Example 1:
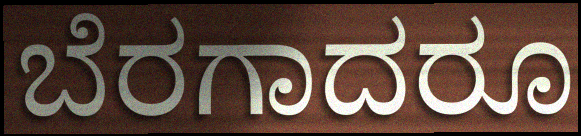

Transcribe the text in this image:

ಬೆರಗಾದರೂ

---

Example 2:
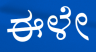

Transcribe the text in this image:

ಈಳೇ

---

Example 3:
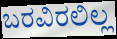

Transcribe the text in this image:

ಬರವಿರಲಿಲ್ಲ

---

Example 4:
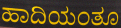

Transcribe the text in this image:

ಹಾದಿಯಂತೂ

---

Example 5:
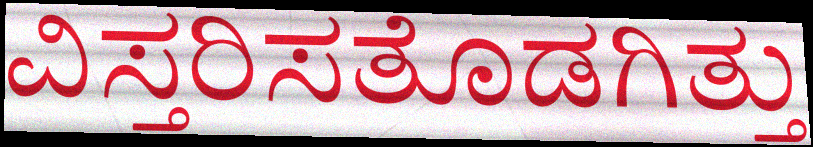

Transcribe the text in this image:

ವಿಸ್ತರಿಸತೊಡಗಿತ್ತು